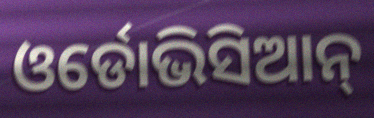
ଓର୍ଡୋଭିସିଆନ୍